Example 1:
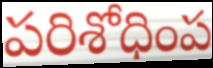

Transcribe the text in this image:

పరిశోధింప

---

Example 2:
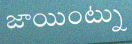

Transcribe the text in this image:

జాయింట్ను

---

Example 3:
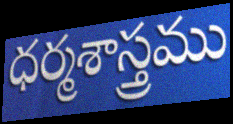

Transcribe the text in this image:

ధర్మశాస్త్రము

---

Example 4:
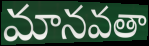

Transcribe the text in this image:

మానవతా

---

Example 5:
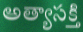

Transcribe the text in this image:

అత్యాసక్తి